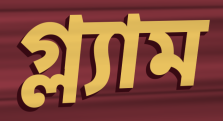
গ্ল্যাম